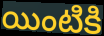
యింటికి